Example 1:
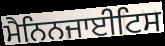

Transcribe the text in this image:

ਮੈਨਿਨਜਾਈਟਿਸ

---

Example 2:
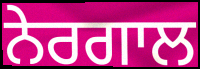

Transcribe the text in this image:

ਨੇਰਗਾਲ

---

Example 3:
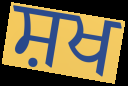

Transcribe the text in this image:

ਸ਼ਖ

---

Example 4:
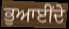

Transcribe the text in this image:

ਭੁਆਈਂਦੇ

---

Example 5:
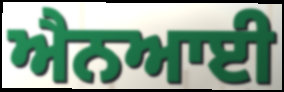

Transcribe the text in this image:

ਐਨਆਈ